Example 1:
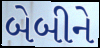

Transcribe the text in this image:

બેબીને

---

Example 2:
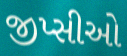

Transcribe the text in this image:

જીપ્સીઓ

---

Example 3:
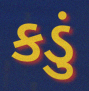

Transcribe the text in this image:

કડું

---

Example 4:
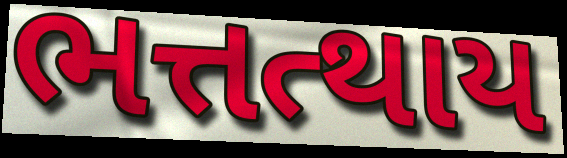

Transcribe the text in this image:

ભત્તત્થાય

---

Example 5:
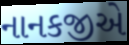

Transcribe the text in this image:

નાનકજીએ